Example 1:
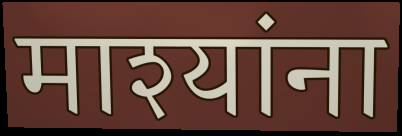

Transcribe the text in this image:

माश्यांना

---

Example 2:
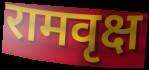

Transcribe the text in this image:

रामवृक्ष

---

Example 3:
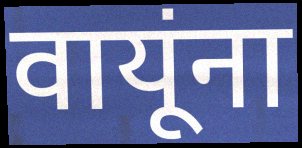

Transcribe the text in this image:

वायूंना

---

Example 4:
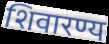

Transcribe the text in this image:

शिवारण्य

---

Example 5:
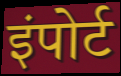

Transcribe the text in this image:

इंपोर्ट